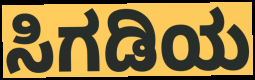
ಸಿಗಡಿಯ